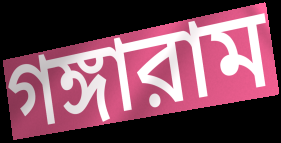
গঙ্গারাম